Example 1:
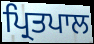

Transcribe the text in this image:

ਪ੍ਰਿਤਪਾਲ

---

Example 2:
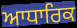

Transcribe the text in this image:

ਆਧਾਰਿਕ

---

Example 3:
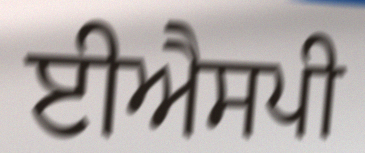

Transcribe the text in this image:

ਈਐਸਪੀ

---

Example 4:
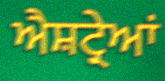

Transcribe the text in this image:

ਐਸ਼ਟ੍ਰੇਆਂ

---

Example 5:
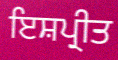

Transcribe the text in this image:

ਇਸ਼ਪ੍ਰੀਤ